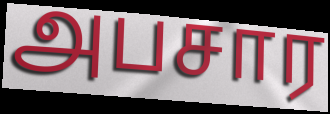
அபசார